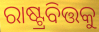
ରାଷ୍ଟ୍ରବିତ୍ତକୁ